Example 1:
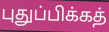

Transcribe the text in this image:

புதுப்பிக்கத்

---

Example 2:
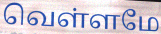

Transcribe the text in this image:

வெள்ளமே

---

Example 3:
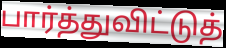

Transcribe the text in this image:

பார்த்துவிட்டுத்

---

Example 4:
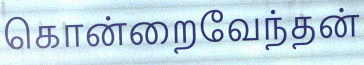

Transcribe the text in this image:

கொன்றைவேந்தன்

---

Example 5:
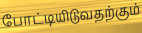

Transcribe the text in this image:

போட்டியிடுவதற்கும்